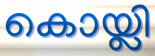
കൊയ്ലി